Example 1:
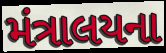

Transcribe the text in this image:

મંત્રાલયના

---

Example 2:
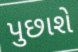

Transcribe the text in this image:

પુછાશે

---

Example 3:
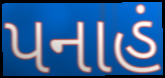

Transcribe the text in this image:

પનાહં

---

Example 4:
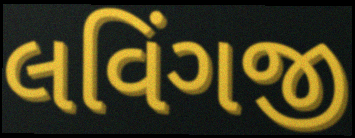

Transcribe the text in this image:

લવિંગજી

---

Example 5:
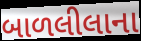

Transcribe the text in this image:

બાળલીલાના